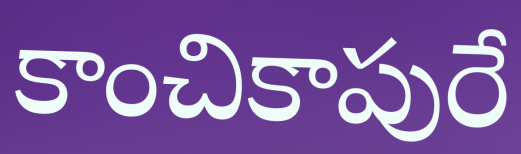
కాంచికాపురే